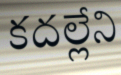
కదల్లేని